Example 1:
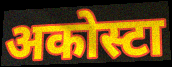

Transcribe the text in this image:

अकोस्टा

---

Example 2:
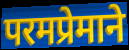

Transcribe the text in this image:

परमप्रेमाने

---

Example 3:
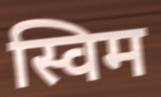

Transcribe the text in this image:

स्विम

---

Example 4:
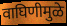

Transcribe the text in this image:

वाघिणीमुळे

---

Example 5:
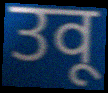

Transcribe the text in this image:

उवू